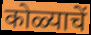
कोळ्याचें